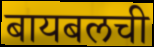
बायबलची